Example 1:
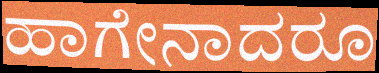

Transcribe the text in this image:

ಹಾಗೇನಾದರೂ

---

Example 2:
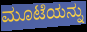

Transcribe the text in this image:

ಮೂಟೆಯನ್ನು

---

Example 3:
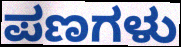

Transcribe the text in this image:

ಪಣಗಳು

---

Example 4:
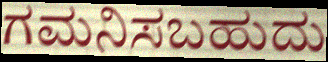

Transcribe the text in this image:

ಗಮನಿಸಬಹುದು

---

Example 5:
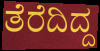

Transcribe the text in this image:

ತೆರೆದಿದ್ದ